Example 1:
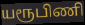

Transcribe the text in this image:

யரூபிணி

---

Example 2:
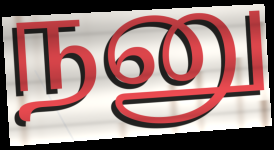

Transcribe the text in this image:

நனு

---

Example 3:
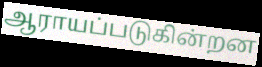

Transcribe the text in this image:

ஆராயப்படுகின்றன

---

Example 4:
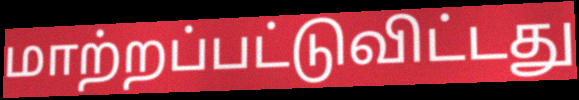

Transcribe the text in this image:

மாற்றப்பட்டுவிட்டது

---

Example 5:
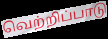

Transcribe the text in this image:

வெற்றிப்பாடு